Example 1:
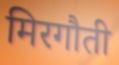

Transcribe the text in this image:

मिरगौती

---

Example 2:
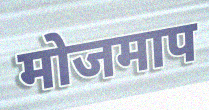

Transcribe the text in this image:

मोजमाप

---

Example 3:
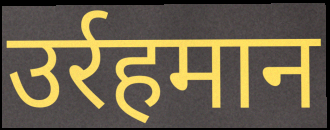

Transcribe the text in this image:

उर्रहमान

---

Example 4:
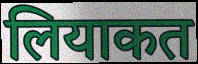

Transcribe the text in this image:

लियाकत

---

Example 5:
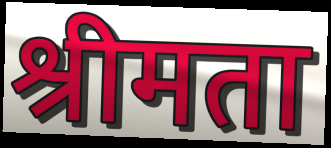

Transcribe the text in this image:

श्रीमता